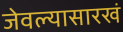
जेवल्यासारखं